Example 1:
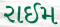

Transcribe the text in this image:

રાઈમ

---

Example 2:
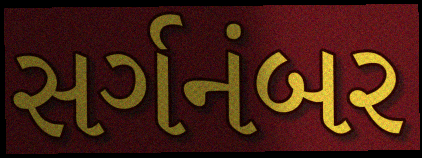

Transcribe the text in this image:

સર્ગનંબર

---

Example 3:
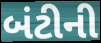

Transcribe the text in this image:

બંટીની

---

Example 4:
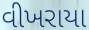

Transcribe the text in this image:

વીખરાયા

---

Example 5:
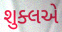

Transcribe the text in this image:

શુક્લએ